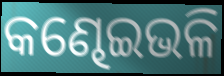
କଣ୍ଢେଇଭଳି